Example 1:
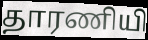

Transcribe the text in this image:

தாரணியி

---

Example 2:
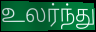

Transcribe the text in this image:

உலர்ந்து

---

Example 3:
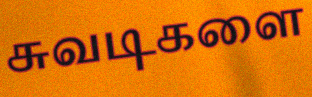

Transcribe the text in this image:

சுவடிகளை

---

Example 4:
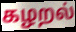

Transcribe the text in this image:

கழறல்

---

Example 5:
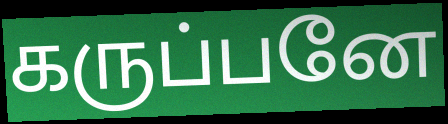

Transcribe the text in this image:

கருப்பனே